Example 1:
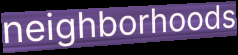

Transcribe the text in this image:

neighborhoods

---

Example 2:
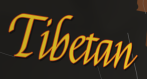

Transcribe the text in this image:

Tibetan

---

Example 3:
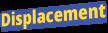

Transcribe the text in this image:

Displacement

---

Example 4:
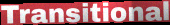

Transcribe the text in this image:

Transitional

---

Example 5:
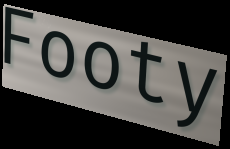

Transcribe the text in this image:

Footy